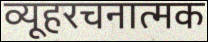
व्यूहरचनात्मक